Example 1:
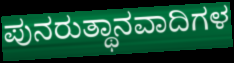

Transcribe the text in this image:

ಪುನರುತ್ಥಾನವಾದಿಗಳ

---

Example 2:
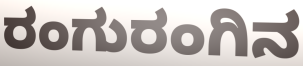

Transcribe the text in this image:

ರಂಗುರಂಗಿನ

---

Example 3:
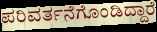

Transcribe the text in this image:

ಪರಿವರ್ತನೆಗೊಂಡಿದ್ದಾರೆ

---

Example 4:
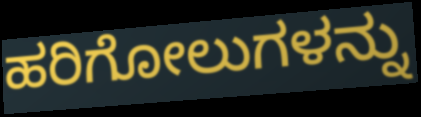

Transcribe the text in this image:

ಹರಿಗೋಲುಗಳನ್ನು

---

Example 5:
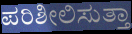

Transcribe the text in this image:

ಪರಿಶೀಲಿಸುತ್ತಾ